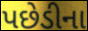
પછેડીના